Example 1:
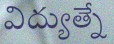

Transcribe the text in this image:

విద్యుత్నే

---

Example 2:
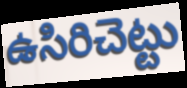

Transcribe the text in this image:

ఉసిరిచెట్టు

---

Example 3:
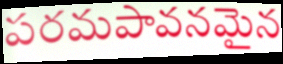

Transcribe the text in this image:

పరమపావనమైన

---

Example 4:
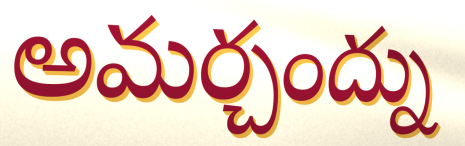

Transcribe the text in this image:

అమర్చంద్ను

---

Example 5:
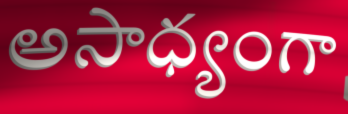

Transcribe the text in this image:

అసాధ్యంగా